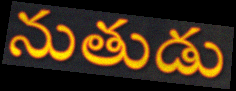
నుతుడు